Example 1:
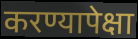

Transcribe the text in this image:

करण्यापेक्षा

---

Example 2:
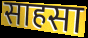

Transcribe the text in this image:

साहसा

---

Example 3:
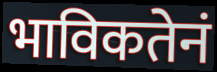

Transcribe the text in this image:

भाविकतेनं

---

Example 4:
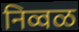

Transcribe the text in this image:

निव्वळ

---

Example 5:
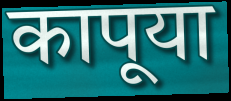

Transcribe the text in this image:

कापूया